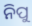
ନିପୁ